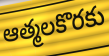
ఆత్మలకొరకు